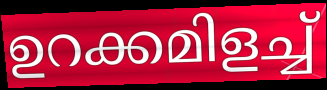
ഉറക്കമിളച്ച്